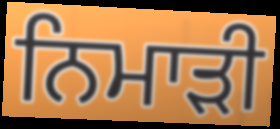
ਨਿਮਾੜੀ